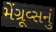
મેંગ્રૂવ્સનું